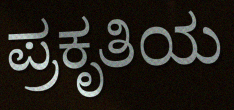
ಪ್ರಕೃತಿಯ